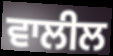
ਵਾਲੀਲ